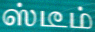
ஸ்டீம்